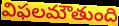
విఫలమౌతుంది